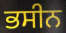
ਭਸੀਨ